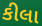
કીલા